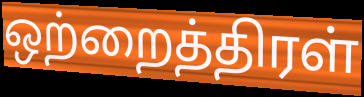
ஒற்றைத்திரள்